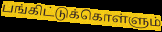
பங்கிட்டுக்கொள்ளும்